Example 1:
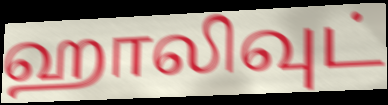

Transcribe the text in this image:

ஹாலிவுட்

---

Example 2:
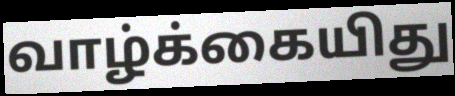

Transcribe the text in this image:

வாழ்க்கையிது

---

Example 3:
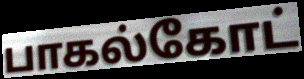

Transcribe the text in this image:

பாகல்கோட்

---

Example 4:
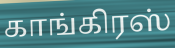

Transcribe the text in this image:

காங்கிரஸ்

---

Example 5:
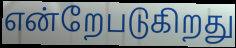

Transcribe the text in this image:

என்றேபடுகிறது